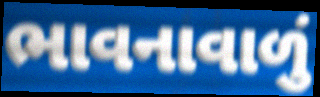
ભાવનાવાળું